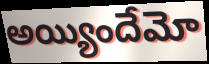
అయ్యిందేమో